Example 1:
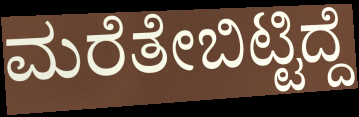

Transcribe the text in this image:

ಮರೆತೇಬಿಟ್ಟಿದ್ದೆ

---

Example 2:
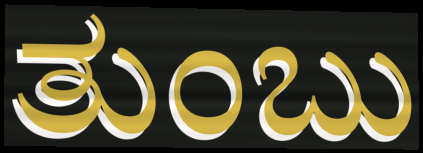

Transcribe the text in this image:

ತುಂಬು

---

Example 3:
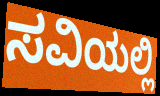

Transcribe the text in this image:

ಸವಿಯಲ್ಲಿ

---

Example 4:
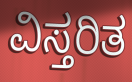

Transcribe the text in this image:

ವಿಸ್ತರಿತ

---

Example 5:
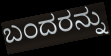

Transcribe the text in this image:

ಬಂದರನ್ನು